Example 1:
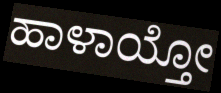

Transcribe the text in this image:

ಹಾಳಾಯ್ತೋ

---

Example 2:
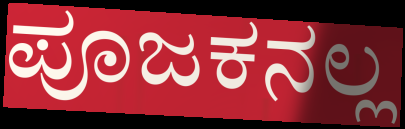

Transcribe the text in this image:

ಪೂಜಕನಲ್ಲ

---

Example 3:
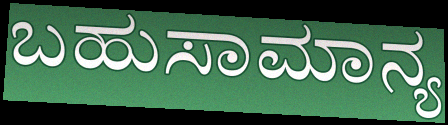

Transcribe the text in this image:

ಬಹುಸಾಮಾನ್ಯ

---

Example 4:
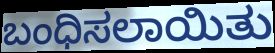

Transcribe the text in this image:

ಬಂಧಿಸಲಾಯಿತು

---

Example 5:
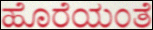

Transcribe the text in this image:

ಹೊರೆಯಂತೆ